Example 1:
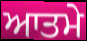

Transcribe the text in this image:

ਆਤਮੇ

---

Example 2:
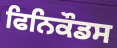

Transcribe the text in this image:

ਫਿਨਿਕੌਡਸ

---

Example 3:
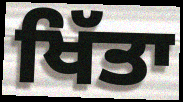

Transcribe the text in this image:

ਖਿੱਤਾ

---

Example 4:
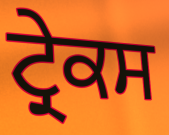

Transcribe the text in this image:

ਟ੍ਰੇਕਸ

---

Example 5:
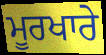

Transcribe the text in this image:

ਮੂਰਖਾਰੇ